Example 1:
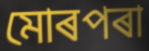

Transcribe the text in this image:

মোৰপৰা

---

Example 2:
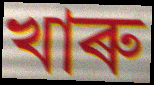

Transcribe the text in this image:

খাৰু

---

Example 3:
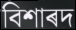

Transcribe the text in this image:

বিশাৰদ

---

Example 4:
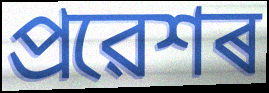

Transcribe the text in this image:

প্ৰৱেশৰ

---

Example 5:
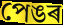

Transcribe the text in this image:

পেঙৰ